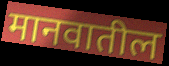
मानवातील